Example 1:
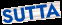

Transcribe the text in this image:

SUTTA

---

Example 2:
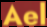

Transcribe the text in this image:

Ael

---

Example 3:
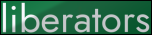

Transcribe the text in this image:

liberators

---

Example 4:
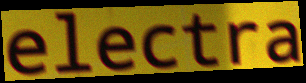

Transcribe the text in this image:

electra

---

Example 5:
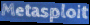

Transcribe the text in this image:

Metasploit